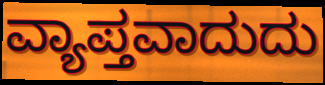
ವ್ಯಾಪ್ತವಾದುದು